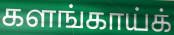
களங்காய்க்